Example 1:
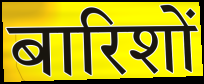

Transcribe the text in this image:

बारिशों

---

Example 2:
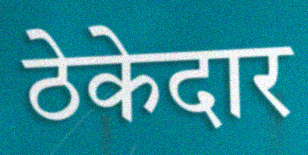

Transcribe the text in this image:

ठेकेदार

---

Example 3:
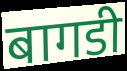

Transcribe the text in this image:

बागडी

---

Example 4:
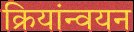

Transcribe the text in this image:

क्रियांन्वयन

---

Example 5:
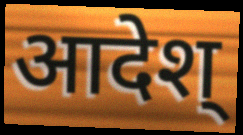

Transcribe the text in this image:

आदेश्